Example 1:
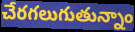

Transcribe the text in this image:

చేరగలుగుతున్నాం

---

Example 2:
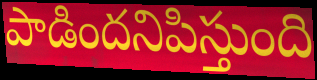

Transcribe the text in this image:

పాడిందనిపిస్తుంది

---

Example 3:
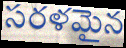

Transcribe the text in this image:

సరళమైన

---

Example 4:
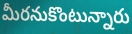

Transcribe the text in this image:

మీరనుకొంటున్నారు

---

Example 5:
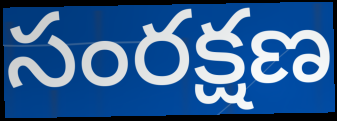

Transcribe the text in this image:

సంరక్షణ